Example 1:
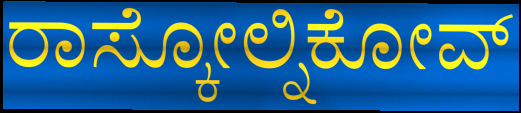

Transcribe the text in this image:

ರಾಸ್ಕೋಲ್ನಿಕೋವ್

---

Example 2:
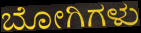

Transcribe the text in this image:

ಬೋಗಿಗಳು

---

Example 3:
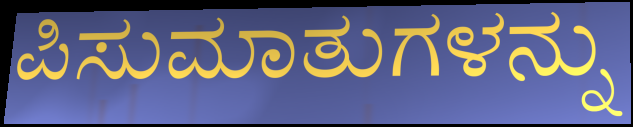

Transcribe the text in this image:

ಪಿಸುಮಾತುಗಳನ್ನು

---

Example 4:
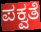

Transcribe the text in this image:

ಪಕ್ವತೆ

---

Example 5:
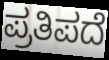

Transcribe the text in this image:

ಪ್ರತಿಪದೆ